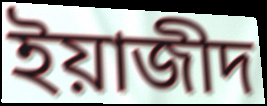
ইয়াজীদ